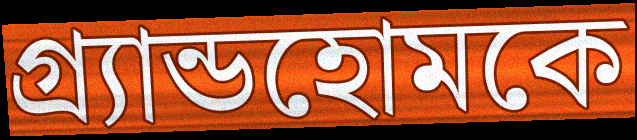
গ্র্যান্ডহোমকে